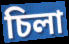
চিলা